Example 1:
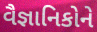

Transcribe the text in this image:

વૈજ્ઞાનિકોને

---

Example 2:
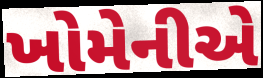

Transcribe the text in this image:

ખોમેનીએ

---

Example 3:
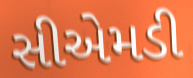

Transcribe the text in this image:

સીએમડી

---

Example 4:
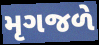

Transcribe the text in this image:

મૃગજળે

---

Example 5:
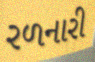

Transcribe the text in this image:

રળનારી